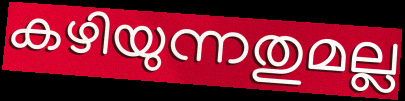
കഴിയുന്നതുമല്ല